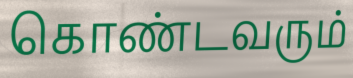
கொண்டவரும்